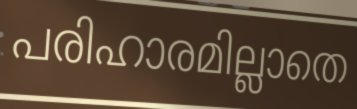
പരിഹാരമില്ലാതെ